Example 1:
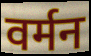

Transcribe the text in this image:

वर्मन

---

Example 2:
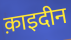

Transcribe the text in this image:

क़ाइदीन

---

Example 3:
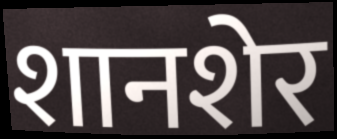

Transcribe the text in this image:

शानशेर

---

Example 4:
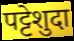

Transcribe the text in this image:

पट्टेशुदा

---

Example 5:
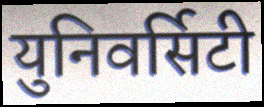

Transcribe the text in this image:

युनिवर्सिटी